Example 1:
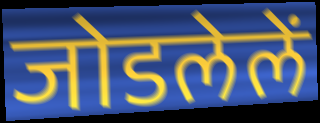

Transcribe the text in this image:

जोडलेलें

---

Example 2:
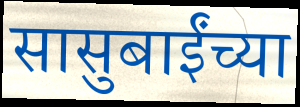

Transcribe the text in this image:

सासुबाईंच्या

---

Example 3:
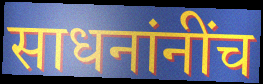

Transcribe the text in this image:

साधनांनींच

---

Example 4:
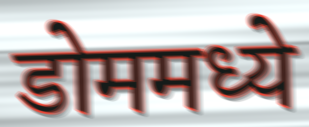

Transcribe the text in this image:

डोममध्ये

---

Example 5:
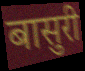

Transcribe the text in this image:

बासुरी